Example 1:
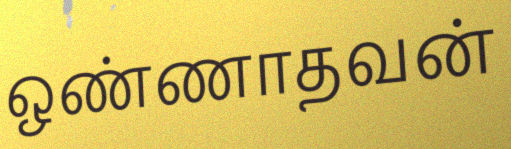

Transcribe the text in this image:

ஒண்ணாதவன்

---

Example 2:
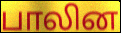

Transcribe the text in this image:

பாலின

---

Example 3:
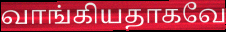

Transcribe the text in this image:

வாங்கியதாகவே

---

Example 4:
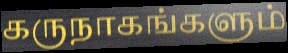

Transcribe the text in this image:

கருநாகங்களும்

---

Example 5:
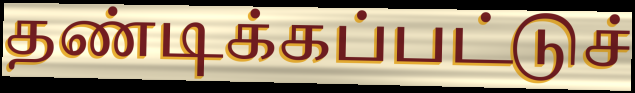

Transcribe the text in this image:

தண்டிக்கப்பட்டுச்